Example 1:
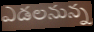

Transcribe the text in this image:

ఎడలనున్న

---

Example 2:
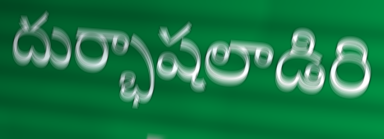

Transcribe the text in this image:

దుర్భాషలాడిరి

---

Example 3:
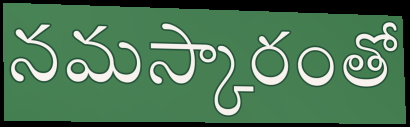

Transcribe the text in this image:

నమస్కారంతో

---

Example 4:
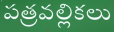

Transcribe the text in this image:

పత్రవల్లికలు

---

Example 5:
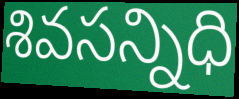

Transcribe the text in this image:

శివసన్నిధి